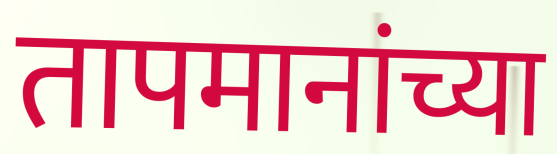
तापमानांच्या